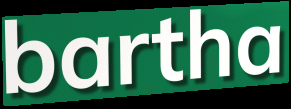
bartha